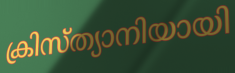
ക്രിസ്ത്യാനിയായി